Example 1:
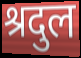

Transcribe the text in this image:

श्रदुल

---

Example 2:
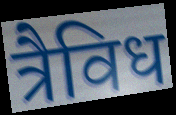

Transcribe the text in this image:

त्रैविध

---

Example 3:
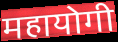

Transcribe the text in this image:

महायोगी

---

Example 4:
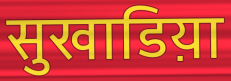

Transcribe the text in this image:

सुखाडिय़ा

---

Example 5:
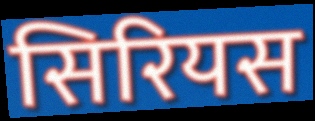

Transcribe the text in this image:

सिरियस